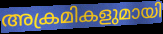
അക്രമികളുമായി